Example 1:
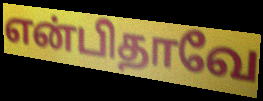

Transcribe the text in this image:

என்பிதாவே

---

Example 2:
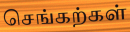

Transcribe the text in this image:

செங்கற்கள்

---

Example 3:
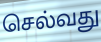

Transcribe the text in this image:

செல்வது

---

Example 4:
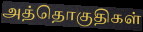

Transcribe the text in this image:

அத்தொகுதிகள்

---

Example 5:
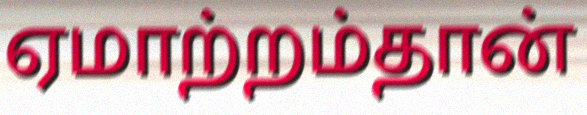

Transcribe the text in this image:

ஏமாற்றம்தான்